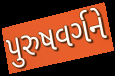
પુરુષવર્ગને